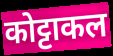
कोट्टाकल